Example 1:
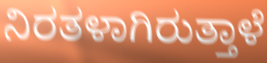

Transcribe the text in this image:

ನಿರತಳಾಗಿರುತ್ತಾಳೆ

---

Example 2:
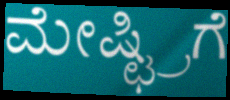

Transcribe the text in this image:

ಮೇಷ್ಟ್ರಿಗೆ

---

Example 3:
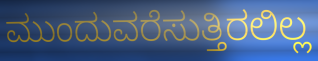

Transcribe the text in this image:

ಮುಂದುವರೆಸುತ್ತಿರಲಿಲ್ಲ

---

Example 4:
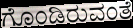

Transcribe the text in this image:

ಗೊಂಡಿರುವಂತೆ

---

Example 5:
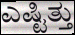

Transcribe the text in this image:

ಎಷ್ಟಿತ್ತು